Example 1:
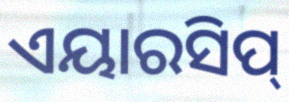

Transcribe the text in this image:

ଏୟାରସିପ୍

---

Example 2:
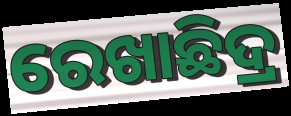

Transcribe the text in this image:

ରେଖାଛିଦ୍ର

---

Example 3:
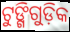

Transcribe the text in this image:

ଟୁଙ୍ଗିଗୁଡ଼ିକ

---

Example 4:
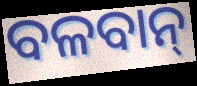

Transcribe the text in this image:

ବଳବାନ୍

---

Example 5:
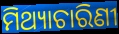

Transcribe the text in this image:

ମିଥ୍ୟାଚାରିଣୀ